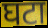
घटा